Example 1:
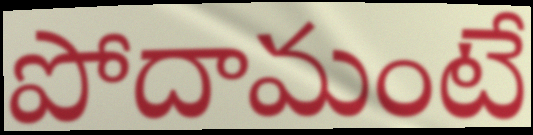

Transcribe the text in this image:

పోదామంటే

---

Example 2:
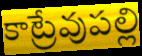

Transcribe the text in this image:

కాట్రేవుపల్లి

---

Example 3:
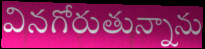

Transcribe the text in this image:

వినగోరుతున్నాను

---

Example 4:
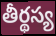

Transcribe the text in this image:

తీర్థస్య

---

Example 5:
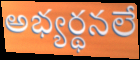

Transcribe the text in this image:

అభ్యర్థనలే